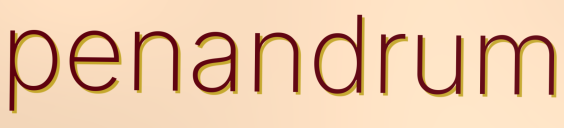
penandrum